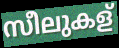
സീലുകള്